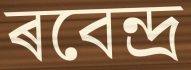
ৰবেন্দ্ৰ